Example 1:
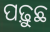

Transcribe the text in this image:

ପଢ଼ୁଛ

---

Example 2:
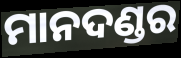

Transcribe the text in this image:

ମାନଦଣ୍ଡର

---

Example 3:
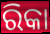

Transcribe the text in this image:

ରିକା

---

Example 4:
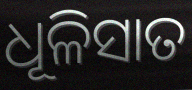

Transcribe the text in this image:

ଧୂଳିସାତ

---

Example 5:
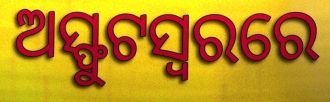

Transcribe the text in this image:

ଅସ୍ଫୁଟସ୍ୱରରେ